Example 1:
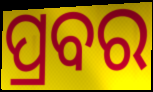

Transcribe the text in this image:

ପ୍ରବର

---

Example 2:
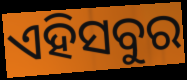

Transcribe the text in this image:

ଏହିସବୁର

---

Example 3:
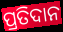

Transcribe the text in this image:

ପ୍ରତିଦାନ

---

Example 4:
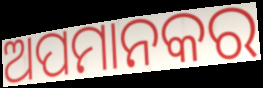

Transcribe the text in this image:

ଅପମାନକର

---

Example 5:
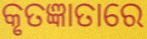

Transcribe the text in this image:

କୃତଜ୍ଞାତାରେ